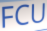
FCU